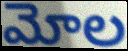
మోల